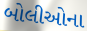
બોલીઓના